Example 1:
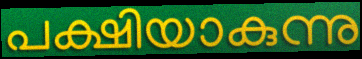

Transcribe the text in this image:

പക്ഷിയാകുന്നു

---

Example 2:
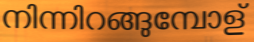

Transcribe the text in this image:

നിന്നിറങ്ങുമ്പോള്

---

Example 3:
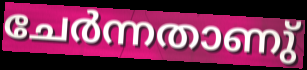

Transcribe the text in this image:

ചേർന്നതാണു്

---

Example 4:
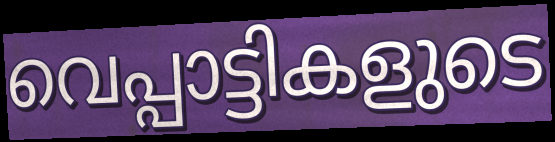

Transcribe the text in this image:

വെപ്പാട്ടികളുടെ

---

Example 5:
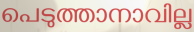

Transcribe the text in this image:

പെടുത്താനാവില്ല